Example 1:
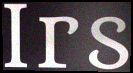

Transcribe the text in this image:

Irs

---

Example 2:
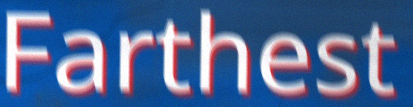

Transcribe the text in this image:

Farthest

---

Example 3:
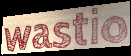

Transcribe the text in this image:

wastio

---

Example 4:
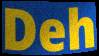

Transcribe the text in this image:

Deh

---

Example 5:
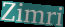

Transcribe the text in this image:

Zimri